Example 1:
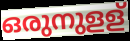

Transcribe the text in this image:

ഒരുനുളള്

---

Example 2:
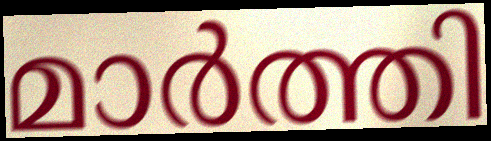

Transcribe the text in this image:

മാർത്തി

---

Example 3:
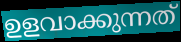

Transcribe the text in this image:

ഉളവാക്കുന്നത്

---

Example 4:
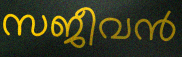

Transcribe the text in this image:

സജീവൻ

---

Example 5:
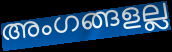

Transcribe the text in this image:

അംഗങ്ങളല്ല